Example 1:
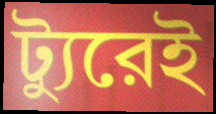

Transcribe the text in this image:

ট্যুরেই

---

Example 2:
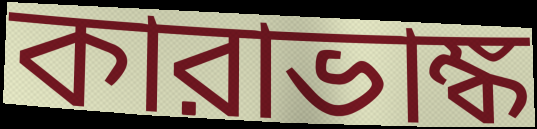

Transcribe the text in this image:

কারাভাঙ্ক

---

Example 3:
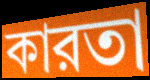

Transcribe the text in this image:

কারতা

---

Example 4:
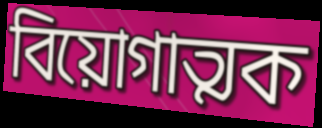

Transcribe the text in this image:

বিয়োগাত্মক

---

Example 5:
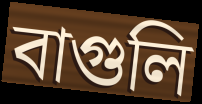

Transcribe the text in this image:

বাগুলি